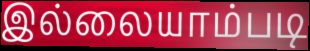
இல்லையாம்படி